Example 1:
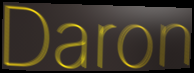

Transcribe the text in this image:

Daron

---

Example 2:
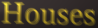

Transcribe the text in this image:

Houses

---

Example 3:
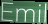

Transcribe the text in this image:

Emil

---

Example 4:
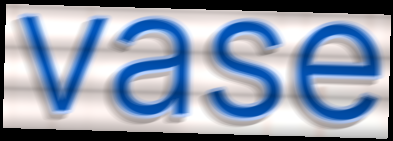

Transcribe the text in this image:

vase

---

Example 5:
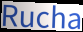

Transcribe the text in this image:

Rucha